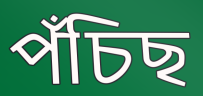
পঁচিছ